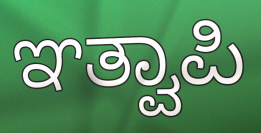
ಞತ್ವಾಪಿ